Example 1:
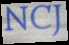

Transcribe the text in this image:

NCJ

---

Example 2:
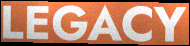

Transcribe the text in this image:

LEGACY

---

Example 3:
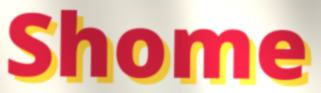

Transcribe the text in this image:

Shome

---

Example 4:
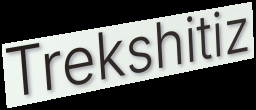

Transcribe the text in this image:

Trekshitiz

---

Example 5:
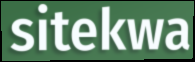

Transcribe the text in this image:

sitekwa